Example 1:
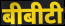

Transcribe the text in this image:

बीबीटी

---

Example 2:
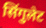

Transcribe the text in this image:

सिंगुलेट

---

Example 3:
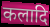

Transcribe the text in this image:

कलादि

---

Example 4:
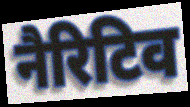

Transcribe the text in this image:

नैरिटिव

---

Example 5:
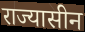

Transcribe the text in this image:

राज्यासीन